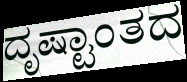
ದೃಷ್ಟಾಂತದ